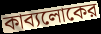
কাব্যলোকের